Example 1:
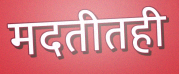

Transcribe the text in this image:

मदतीतही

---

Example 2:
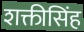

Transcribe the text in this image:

शक्तीसिंह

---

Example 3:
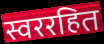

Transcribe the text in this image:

स्वररहित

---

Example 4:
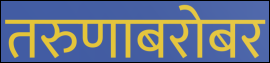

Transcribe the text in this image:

तरुणाबरोबर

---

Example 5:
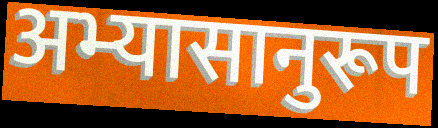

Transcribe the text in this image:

अभ्यासानुरूप